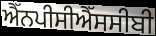
ਐੱਨਪੀਸੀਐੱਸਸੀਬੀ